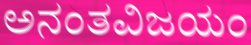
ಅನಂತವಿಜಯಂ